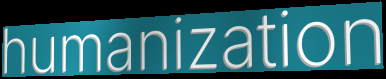
humanization